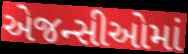
એજન્સીઓમાં